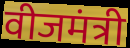
वीजमंत्री